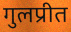
गुलप्रीत